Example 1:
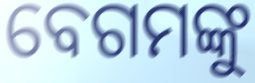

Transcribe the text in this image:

ବେଗମଙ୍କୁ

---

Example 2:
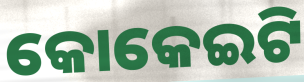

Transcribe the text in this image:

କୋକେଇଟି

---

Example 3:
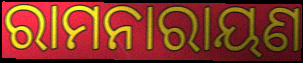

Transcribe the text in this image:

ରାମନାରାୟଣ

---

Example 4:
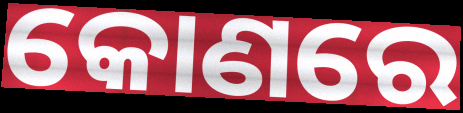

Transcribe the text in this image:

କୋଣରେ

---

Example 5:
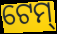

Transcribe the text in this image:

ଟେମ୍